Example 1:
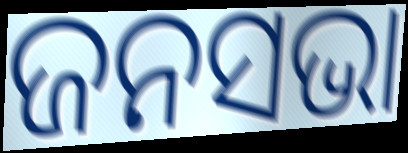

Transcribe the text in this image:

ଜନସଭା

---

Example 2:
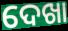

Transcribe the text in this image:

ଦେଖା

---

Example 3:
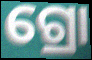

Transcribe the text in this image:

ଗ୍ରୋ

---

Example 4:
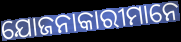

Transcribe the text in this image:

ଯୋଜନାକାରୀମାନେ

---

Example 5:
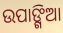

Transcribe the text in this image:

ଉପାଙ୍ଗିଆ